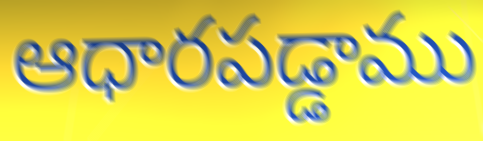
ఆధారపడ్డాము